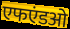
एफएंडओ